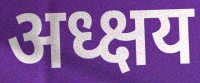
अध्क्षय